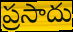
ప్రసాదు